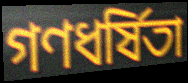
গণধর্ষিতা